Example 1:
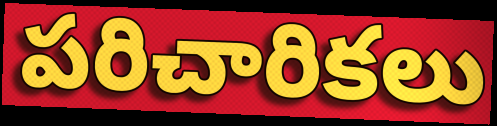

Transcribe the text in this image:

పరిచారికలు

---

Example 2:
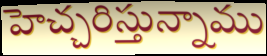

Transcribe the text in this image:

హెచ్చరిస్తున్నాము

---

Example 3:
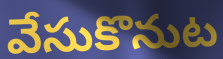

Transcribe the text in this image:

వేసుకొనుట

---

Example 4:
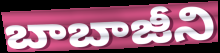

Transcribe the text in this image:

బాబాజీని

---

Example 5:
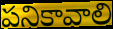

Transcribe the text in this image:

పనికావాలి